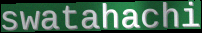
swatahachi